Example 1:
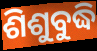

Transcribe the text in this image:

ଶିଶୁବୁଦ୍ଧି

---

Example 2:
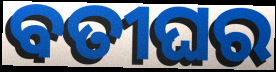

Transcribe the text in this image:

ବତୀଘର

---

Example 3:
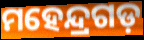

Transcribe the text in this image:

ମହେନ୍ଦ୍ରଗଡ଼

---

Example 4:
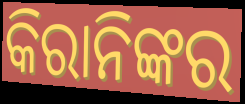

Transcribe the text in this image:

କିରାନିଙ୍କର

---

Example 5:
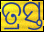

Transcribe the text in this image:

ତ୍ରସ୍ତ